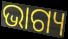
ଭାଗ୍ୟ